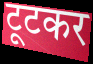
टूटकर